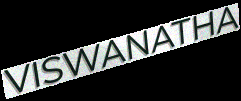
VISWANATHA